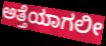
ಅತ್ತೆಯಾಗಲೀ